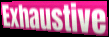
Exhaustive